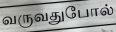
வருவதுபோல்